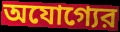
অযোগ্যের